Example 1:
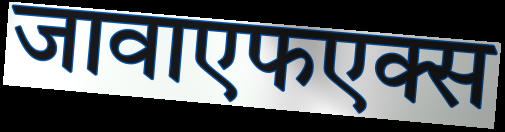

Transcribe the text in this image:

जावाएफएक्स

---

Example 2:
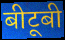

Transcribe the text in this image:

बीटूबी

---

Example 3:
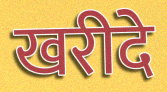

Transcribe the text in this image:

खरीदे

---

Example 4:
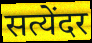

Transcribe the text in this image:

सत्येंदर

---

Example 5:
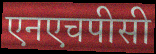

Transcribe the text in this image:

एनएचपीसी